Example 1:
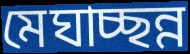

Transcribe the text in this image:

মেঘাচ্ছন্ন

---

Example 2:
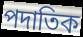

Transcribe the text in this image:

পদাতিক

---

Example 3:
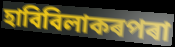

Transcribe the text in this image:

হাবিবিলাকৰপৰা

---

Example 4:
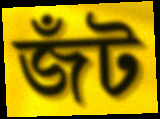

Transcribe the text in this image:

জঁট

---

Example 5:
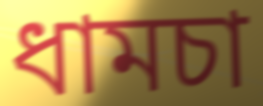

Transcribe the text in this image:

ধামচা